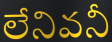
లేనివనీ